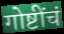
गोष्टींचं